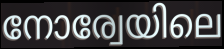
നോര്വേയിലെ